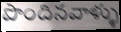
పొందినవాళ్ళు